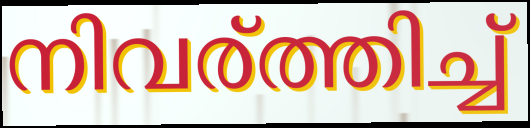
നിവര്ത്തിച്ച്